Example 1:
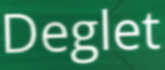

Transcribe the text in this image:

Deglet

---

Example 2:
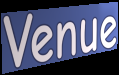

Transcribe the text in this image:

Venue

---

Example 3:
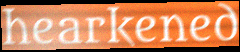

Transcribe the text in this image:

hearkened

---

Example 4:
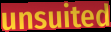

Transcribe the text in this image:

unsuited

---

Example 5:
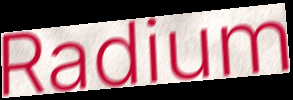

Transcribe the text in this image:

Radium